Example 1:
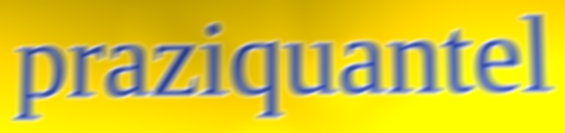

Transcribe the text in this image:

praziquantel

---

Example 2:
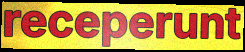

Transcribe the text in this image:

receperunt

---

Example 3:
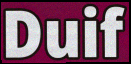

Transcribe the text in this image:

Duif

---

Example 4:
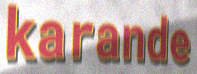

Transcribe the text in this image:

karande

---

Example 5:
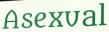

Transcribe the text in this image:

Asexual